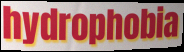
hydrophobia